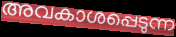
അവകാശപ്പെടുന്ന